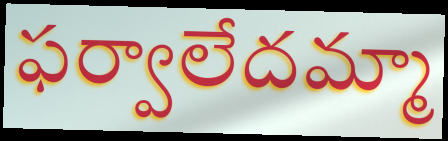
ఫర్వాలేదమ్మా